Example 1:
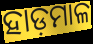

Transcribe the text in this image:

ହାଡ଼ମାଳ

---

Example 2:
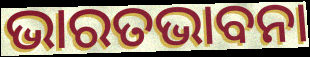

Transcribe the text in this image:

ଭାରତଭାବନା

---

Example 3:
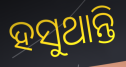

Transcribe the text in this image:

ହସୁଥାନ୍ତି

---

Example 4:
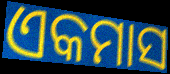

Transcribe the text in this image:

ଏକମାସ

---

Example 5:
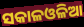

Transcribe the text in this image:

ସକାଳଓଳିଆ